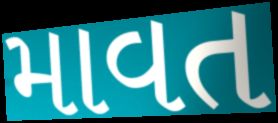
માવત